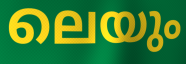
ലെയും